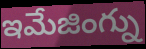
ఇమేజింగ్ను